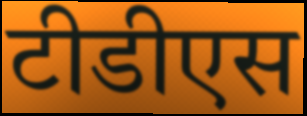
टीडीएस